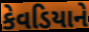
કેવડિયાને